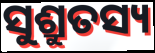
ସୁଶ୍ରୁତସ୍ୟ